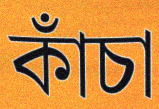
কাঁচা